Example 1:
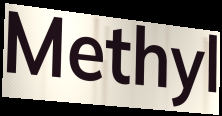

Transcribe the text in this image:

Methyl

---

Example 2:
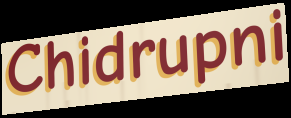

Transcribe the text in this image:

Chidrupni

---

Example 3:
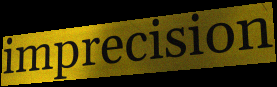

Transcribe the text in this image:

imprecision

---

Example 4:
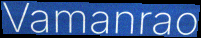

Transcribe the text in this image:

Vamanrao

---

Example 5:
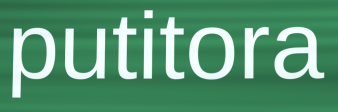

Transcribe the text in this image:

putitora